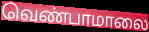
வெண்பாமாலை